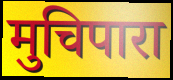
मुचिपारा